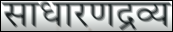
साधारणद्रव्य